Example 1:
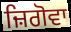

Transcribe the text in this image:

ਜ਼ਿਗੋਵਾ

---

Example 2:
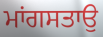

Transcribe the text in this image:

ਮਾਂਗਸਤਾਉ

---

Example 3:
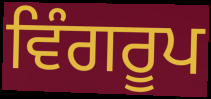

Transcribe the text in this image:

ਵਿੰਗਰੂਪ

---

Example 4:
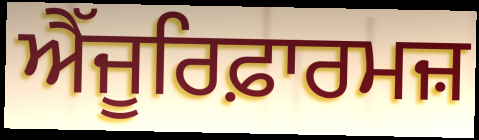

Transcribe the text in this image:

ਐੱਜੂਰਿਫ਼ਾਰਮਜ਼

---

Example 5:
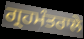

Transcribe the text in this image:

ਗ੍ਰਹਮੰਤਰਾਲੇ